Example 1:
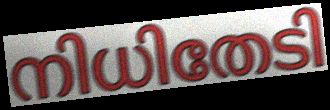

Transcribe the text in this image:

നിധിതേടി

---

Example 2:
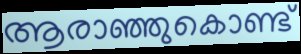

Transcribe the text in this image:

ആരാഞ്ഞുകൊണ്ട്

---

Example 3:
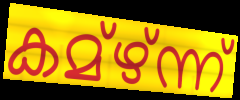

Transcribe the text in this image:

കമ്ഴ്ന്ന്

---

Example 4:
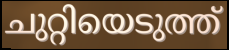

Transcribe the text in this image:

ചുറ്റിയെടുത്ത്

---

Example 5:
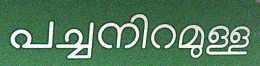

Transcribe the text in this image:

പച്ചനിറമുള്ള